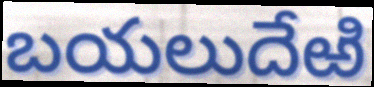
బయలుదేఱి